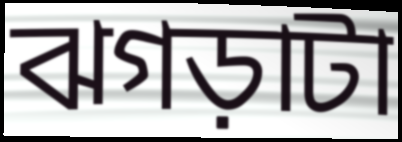
ঝগড়াটা